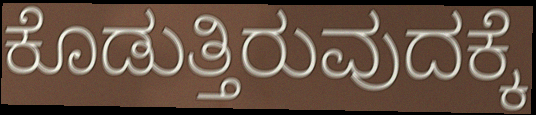
ಕೊಡುತ್ತಿರುವುದಕ್ಕೆ